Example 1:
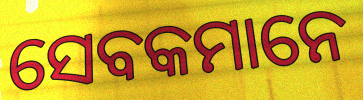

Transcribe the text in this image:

ସେବକମାନେ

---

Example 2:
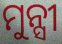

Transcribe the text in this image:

ମୁନ୍ସୀ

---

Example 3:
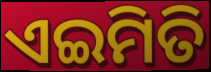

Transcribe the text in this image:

ଏଇମିତି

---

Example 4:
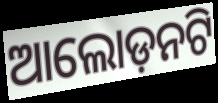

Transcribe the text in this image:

ଆଲୋଡ଼ନଟି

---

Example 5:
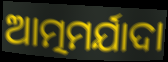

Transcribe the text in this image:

ଆତ୍ମମର୍ଯାଦା